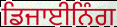
ਡਿਜਾਈਨਿੰਗ